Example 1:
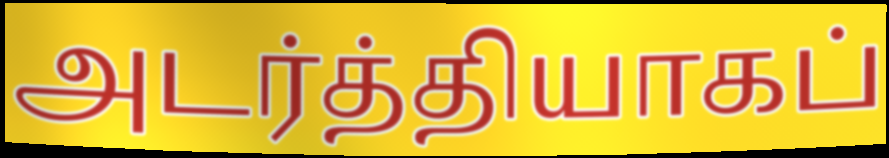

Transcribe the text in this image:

அடர்த்தியாகப்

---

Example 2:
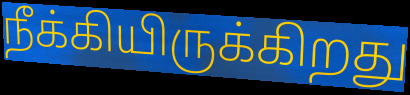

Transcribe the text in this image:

நீக்கியிருக்கிறது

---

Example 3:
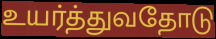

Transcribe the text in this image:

உயர்த்துவதோடு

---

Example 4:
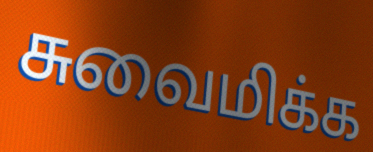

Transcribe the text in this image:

சுவைமிக்க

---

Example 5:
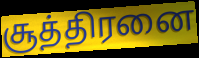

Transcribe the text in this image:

சூத்திரனை